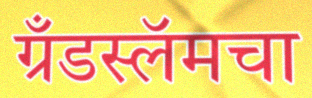
ग्रँडस्लॅमचा